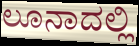
ಲೂನಾದಲ್ಲಿ